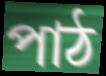
পাঠ